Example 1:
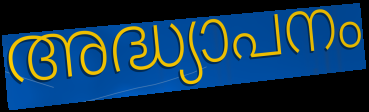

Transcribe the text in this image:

അദ്ധ്യാപനം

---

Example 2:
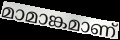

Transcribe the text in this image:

മാമാങ്കമാണ്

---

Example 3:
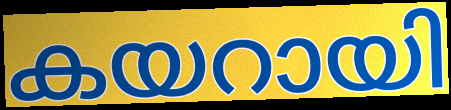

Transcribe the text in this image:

കയറായി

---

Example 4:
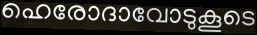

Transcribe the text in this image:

ഹെരോദാവോടുകൂടെ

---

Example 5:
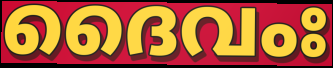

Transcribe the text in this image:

ദൈവംഃ